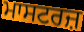
ਮਾਸਟਰਜ਼